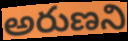
అరుణని